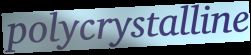
polycrystalline